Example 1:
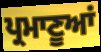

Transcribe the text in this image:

ਪ੍ਰਮਾਣੂਆਂ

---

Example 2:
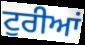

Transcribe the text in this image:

ਟੁਰੀਆਂ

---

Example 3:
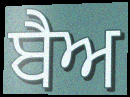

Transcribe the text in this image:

ਬੈਅ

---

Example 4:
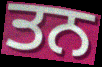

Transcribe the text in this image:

ਤਨ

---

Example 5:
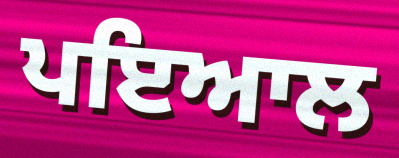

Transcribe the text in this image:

ਪਇਆਲ